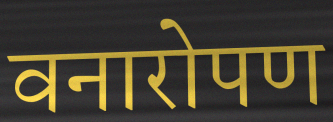
वनारोपण